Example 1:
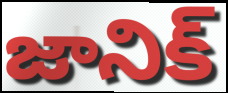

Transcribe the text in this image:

జానిక్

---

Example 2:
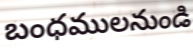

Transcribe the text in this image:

బంధములనుండి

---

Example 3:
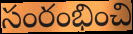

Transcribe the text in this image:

సంరంభించి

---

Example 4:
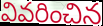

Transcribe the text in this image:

వివరించిన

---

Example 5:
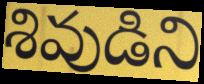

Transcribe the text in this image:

శివుడిని